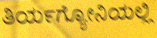
ತಿರ್ಯಗ್ಯೋನಿಯಲ್ಲಿ